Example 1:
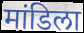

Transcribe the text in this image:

मांडिला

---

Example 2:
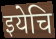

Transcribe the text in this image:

इयेचि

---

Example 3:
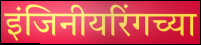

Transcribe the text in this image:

इंजिनीयरिंगच्या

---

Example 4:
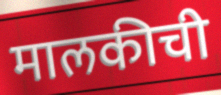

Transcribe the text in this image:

मालकीची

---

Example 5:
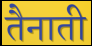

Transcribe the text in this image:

तैनाती